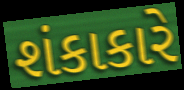
શંકાકારે